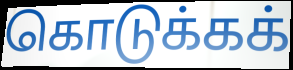
கொடுக்கக்